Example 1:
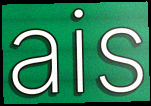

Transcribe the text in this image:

ais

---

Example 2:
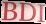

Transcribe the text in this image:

BDI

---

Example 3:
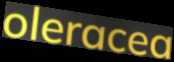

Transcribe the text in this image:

oleracea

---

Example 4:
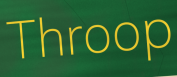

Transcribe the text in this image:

Throop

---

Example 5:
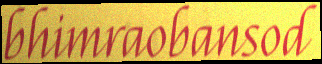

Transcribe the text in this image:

bhimraobansod